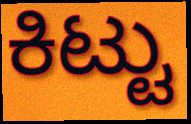
ಕಿಟ್ಟು